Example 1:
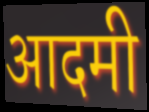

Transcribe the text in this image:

आदमी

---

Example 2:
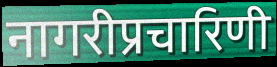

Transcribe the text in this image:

नागरीप्रचारिणी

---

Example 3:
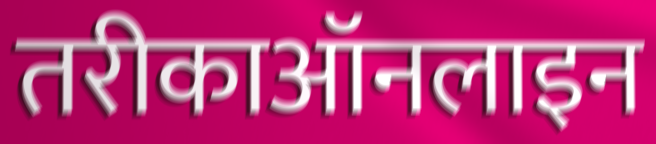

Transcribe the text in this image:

तरीकाऑनलाइन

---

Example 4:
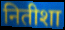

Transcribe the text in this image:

नितीशा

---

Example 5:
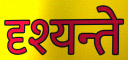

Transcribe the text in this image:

दृश्यन्ते